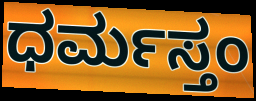
ಧರ್ಮಸ್ತಂ